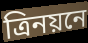
ত্রিনয়নে